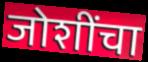
जोशींचा